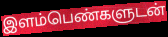
இளம்பெண்களுடன்